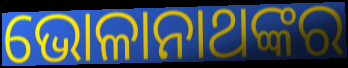
ଭୋଳାନାଥଙ୍କର